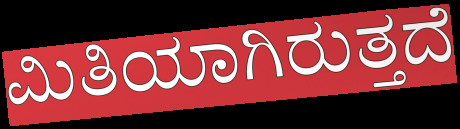
ಮಿತಿಯಾಗಿರುತ್ತದೆ